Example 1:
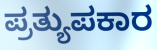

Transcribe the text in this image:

ಪ್ರತ್ಯುಪಕಾರ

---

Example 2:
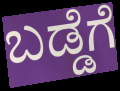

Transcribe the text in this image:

ಬಡ್ಡೆಗೆ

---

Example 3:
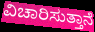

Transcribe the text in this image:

ವಿಚಾರಿಸುತ್ತಾನೆ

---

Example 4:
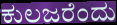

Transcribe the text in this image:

ಕುಲಜರೆಂದು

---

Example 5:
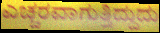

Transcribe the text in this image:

ಎಚ್ಚರವಾಗುತ್ತಿದ್ದುದು